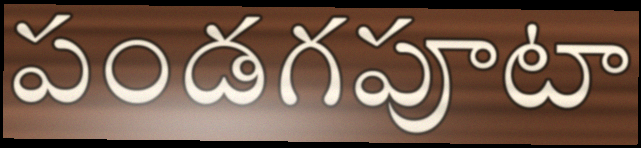
పండగపూటా